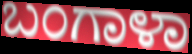
ಬಂಗಾಳಾ